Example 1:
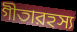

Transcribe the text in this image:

গীতারহস্য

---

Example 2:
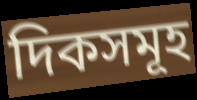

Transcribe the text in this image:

দিকসমূহ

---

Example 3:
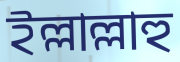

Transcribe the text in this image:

ইল্লাল্লাহু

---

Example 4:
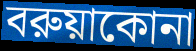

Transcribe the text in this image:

বরুয়াকোনা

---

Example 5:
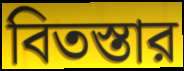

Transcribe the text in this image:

বিতস্তার